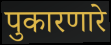
पुकारणारे